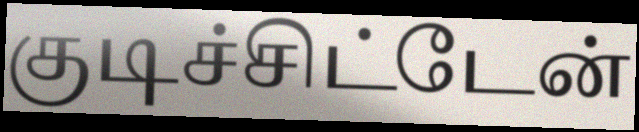
குடிச்சிட்டேன்